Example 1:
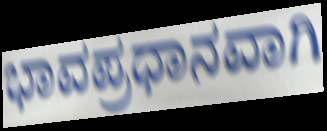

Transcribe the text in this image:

ಭಾವಪ್ರಧಾನವಾಗಿ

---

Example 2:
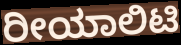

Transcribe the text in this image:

ರೀಯಾಲಿಟಿ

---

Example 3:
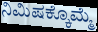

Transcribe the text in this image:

ನಿಮಿಷಕ್ಕೊಮ್ಮೆ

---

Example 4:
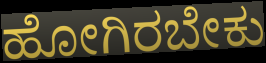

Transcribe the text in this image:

ಹೋಗಿರಬೇಕು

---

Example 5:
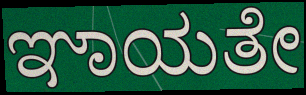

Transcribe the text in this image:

ಞಾಯತೇ